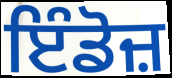
ਇੰਡੋਜ਼